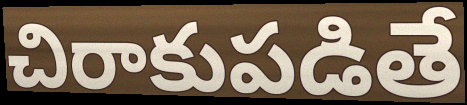
చిరాకుపడితే